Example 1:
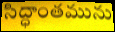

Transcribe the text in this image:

సిద్ధాంతమును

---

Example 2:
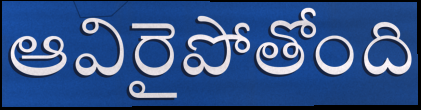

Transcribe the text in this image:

ఆవిరైపోతోంది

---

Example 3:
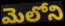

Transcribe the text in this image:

మెలోని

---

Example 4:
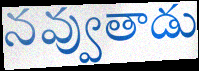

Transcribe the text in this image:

నవ్వుతాడు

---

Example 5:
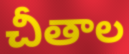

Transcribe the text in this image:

చీతాల